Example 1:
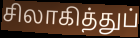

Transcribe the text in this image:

சிலாகித்துப்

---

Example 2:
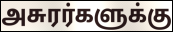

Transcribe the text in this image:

அசுரர்களுக்கு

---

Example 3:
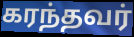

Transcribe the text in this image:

கரந்தவர்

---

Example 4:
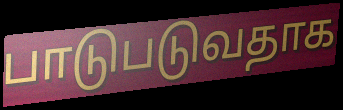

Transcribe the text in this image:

பாடுபடுவதாக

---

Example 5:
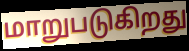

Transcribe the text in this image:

மாறுபடுகிறது